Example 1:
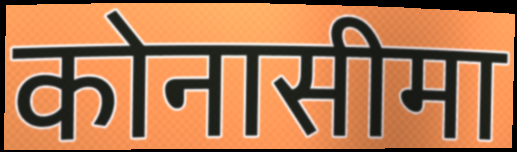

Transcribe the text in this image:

कोनासीमा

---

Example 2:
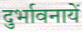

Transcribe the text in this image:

दुर्भावनायें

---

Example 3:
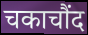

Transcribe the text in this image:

चकाचौंद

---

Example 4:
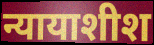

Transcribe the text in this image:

न्यायाशीश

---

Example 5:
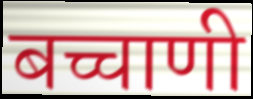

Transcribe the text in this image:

बच्चाणी